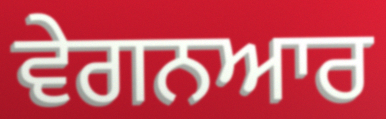
ਵੇਗਨਆਰ